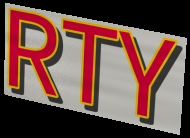
RTY